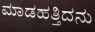
ಮಾಡಹತ್ತಿದನು